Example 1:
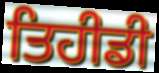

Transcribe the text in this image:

ਤਿਹੀਡੀ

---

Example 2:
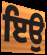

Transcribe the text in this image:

ਇਉ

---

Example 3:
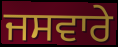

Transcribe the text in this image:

ਜਸਵਾਰੇ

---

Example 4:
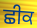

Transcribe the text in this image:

ਛੀਕ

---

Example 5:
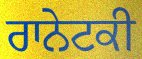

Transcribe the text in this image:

ਰਾਨੇਟਕੀ